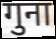
गुना